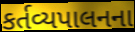
કર્તવ્યપાલનના